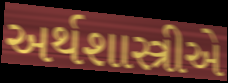
અર્થશાસ્ત્રીએ